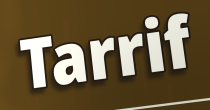
Tarrif